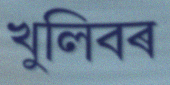
খুলিবৰ